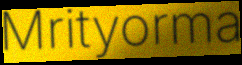
Mrityorma